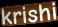
krishi